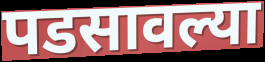
पडसावल्या